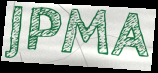
JPMA